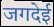
जगदेई